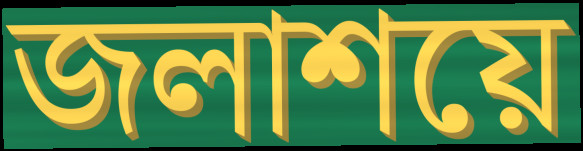
জলাশয়ে